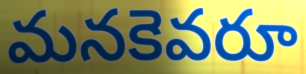
మనకెవరూ